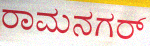
ರಾಮನಗರ್